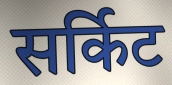
सर्किट